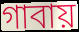
গাবায়